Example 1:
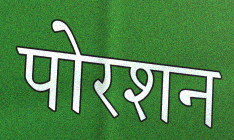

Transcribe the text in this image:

पोरशन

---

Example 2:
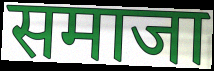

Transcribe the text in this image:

समाजा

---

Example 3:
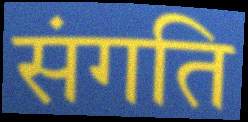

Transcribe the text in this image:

संगति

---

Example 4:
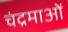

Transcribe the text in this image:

चंद्रमाओं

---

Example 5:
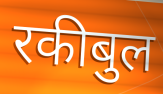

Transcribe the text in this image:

रकीबुल